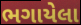
ભગાયેલા